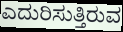
ಎದುರಿಸುತ್ತಿರುವ